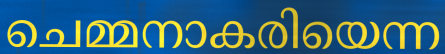
ചെമ്മനാകരിയെന്ന